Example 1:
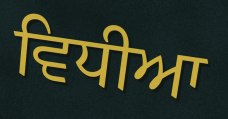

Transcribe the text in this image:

ਵਿਧੀਆ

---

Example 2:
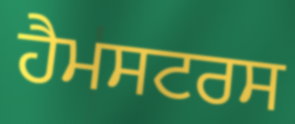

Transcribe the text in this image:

ਹੈਮਸਟਰਸ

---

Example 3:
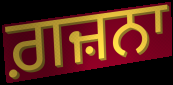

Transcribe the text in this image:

ਗ਼ਜ਼ਨਾ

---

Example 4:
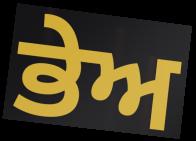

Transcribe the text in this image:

ਭੇਅ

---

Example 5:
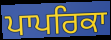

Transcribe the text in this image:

ਪਾਪਰਿਕਾ